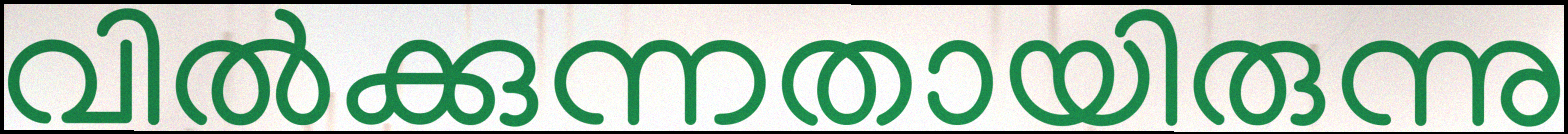
വിൽക്കുന്നതായിരുന്നു